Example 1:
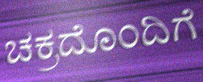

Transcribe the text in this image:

ಚಕ್ರದೊಂದಿಗೆ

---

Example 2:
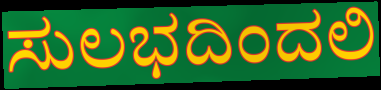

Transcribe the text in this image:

ಸುಲಭದಿಂದಲಿ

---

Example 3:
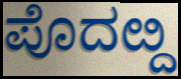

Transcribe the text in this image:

ಪೊದೞ್ದ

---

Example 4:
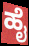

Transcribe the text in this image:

ಹೈ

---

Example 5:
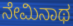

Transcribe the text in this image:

ನೇಮಿನಾಥ